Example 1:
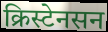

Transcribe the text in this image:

क्रिस्टेनसन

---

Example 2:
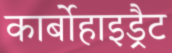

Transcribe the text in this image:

कार्बोहाइड्रैट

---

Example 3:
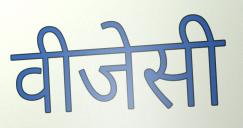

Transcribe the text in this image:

वीजेसी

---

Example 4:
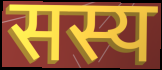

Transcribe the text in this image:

सस्य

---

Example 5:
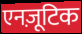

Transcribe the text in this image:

एनज़ूटिक